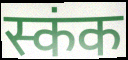
स्कंक